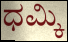
ಧಮ್ಕಿ